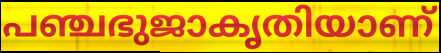
പഞ്ചഭുജാകൃതിയാണ്